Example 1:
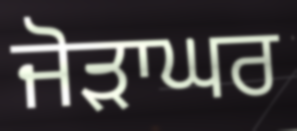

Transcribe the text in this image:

ਜੋੜਾਘਰ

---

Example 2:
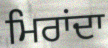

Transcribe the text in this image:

ਮਿਰਾਂਦਾ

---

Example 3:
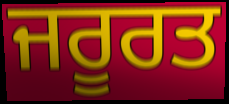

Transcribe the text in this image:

ਜਰੂਰਤ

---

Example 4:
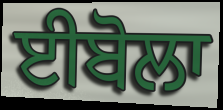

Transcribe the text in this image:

ਈਬੋਲਾ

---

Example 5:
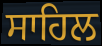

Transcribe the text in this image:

ਸਾਹਿਲ